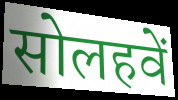
सोलहवें